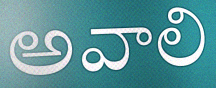
అవాలి